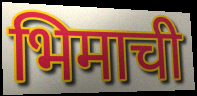
भिमाची